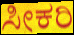
ಸೀಕರಿ